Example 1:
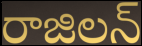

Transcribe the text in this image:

రాజిలన్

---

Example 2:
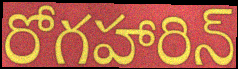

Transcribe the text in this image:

రోగహారిన్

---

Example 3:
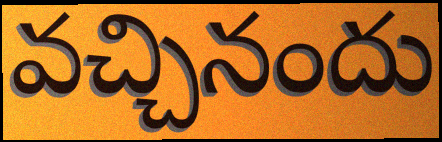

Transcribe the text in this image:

వచ్చినందు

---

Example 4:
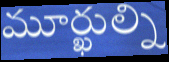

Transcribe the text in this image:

మూర్ఖుల్ని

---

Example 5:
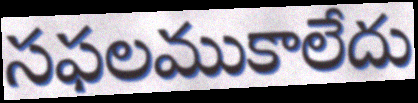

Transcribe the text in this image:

సఫలముకాలేదు